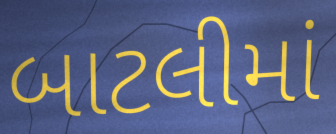
બાટલીમાં